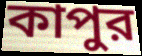
কাপুর